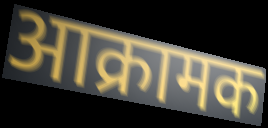
आक्रामक